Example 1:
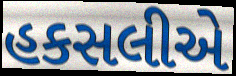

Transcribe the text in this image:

હકસલીએ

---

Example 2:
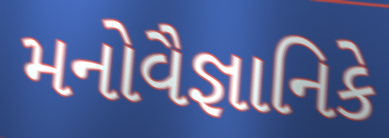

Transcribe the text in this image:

મનોવૈજ્ઞાનિકે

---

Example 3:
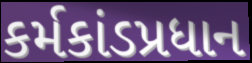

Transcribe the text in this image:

કર્મકાંડપ્રધાન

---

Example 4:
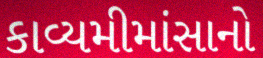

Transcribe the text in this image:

કાવ્યમીમાંસાનો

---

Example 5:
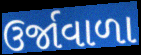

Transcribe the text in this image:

ઉર્જાવાળા